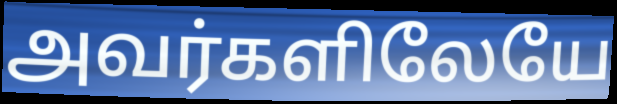
அவர்களிலேயே